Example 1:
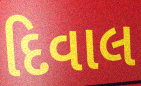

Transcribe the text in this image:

દિવાલ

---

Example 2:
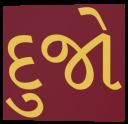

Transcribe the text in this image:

દુજો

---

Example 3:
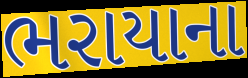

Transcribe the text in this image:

ભરાયાના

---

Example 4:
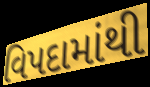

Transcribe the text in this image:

વિપદામાંથી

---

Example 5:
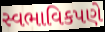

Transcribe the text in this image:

સ્વભાવિકપણે